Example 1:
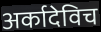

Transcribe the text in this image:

अर्कादेविच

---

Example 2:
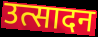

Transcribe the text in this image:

उत्सादन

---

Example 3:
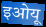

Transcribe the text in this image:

इओयू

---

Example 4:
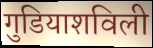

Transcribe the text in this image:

गुडियाशविली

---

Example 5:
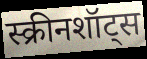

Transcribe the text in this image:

स्क्रीनशॉट्स